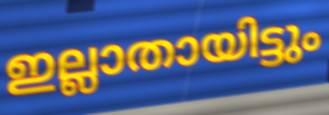
ഇല്ലാതായിട്ടും